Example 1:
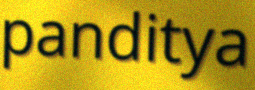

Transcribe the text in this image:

panditya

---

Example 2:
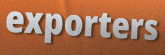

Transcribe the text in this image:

exporters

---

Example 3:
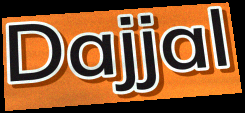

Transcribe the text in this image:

Dajjal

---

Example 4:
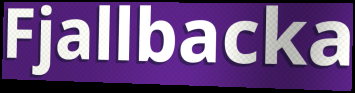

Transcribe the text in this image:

Fjallbacka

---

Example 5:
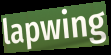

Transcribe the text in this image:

lapwing